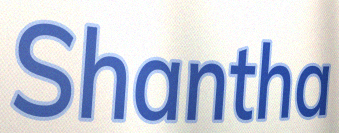
Shantha